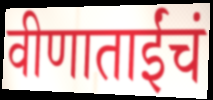
वीणाताईंचं